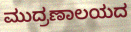
ಮುದ್ರಣಾಲಯದ